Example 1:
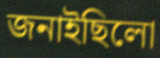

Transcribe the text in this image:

জনাইছিলো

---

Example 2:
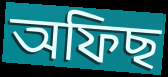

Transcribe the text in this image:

অফিছ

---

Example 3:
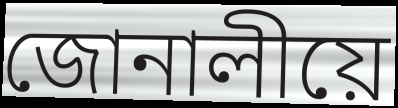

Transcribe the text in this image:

জোনালীয়ে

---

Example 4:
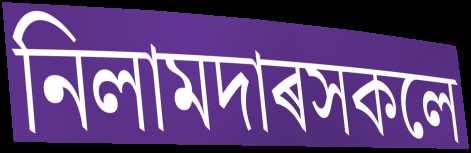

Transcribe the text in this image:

নিলামদাৰসকলে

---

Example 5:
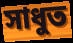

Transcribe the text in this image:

সাধুত